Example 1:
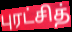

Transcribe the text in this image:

புரட்சித்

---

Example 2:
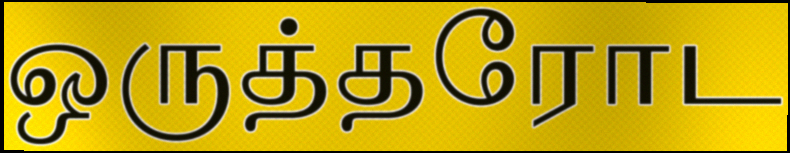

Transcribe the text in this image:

ஒருத்தரோட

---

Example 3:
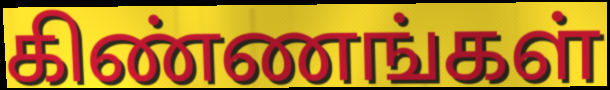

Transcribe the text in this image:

கிண்ணங்கள்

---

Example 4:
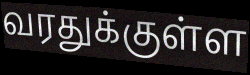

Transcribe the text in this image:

வரதுக்குள்ள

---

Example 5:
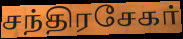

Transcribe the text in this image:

சந்திரசேகர்